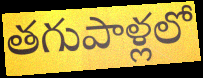
తగుపాళ్లలో